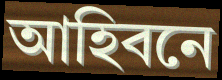
আহিবনে